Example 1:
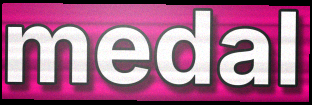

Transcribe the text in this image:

medal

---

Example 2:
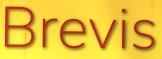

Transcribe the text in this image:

Brevis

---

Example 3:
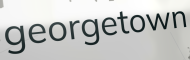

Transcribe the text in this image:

georgetown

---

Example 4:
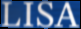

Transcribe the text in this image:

LISA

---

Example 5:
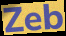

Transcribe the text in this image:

Zeb